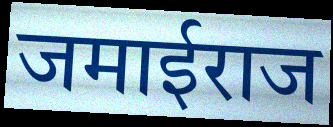
जमाईराज